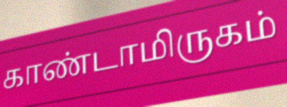
காண்டாமிருகம்